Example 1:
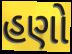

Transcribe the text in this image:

હણો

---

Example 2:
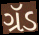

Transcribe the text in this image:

ગ્રૅડ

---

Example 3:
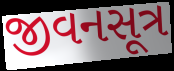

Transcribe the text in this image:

જીવનસૂત્ર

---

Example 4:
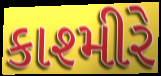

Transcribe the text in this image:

કાશ્મીરે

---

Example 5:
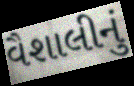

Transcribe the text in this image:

વૈશાલીનું